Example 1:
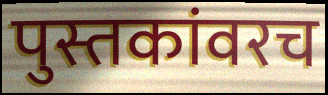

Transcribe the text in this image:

पुस्तकांवरच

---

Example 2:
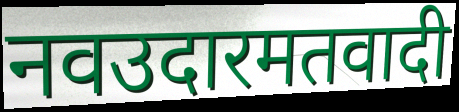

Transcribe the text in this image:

नवउदारमतवादी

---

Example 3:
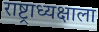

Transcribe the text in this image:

राष्ट्राध्यक्षाला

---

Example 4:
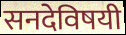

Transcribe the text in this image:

सनदेविषयी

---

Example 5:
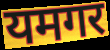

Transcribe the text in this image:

यमगर